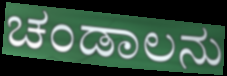
ಚಂಡಾಲನು